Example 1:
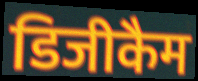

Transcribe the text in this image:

डिजीकैम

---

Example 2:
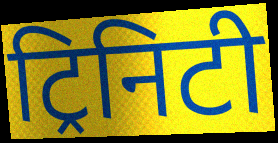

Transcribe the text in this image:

ट्रिनिटी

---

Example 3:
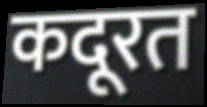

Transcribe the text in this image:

कदूरत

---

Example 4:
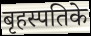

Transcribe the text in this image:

बृहस्पतिके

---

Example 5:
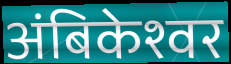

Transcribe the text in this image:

अंबिकेश्वर